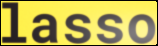
lasso